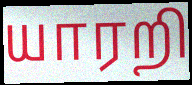
யாரறி